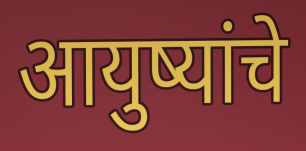
आयुष्यांचे